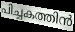
പിച്ചകത്തിൻ